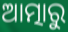
ଆତ୍ମାରୁ